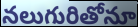
నలుగురితోనూ